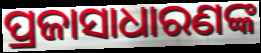
ପ୍ରଜାସାଧାରଣଙ୍କ